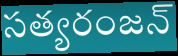
సత్యరంజన్